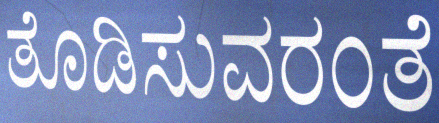
ತೊಡಿಸುವರಂತೆ